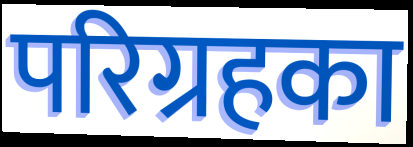
परिग्रहका